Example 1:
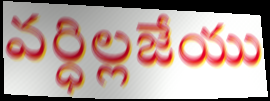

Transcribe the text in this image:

వర్ధిల్లజేయు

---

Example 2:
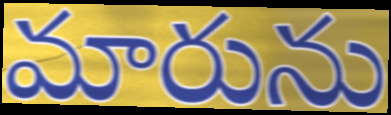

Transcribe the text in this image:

మారును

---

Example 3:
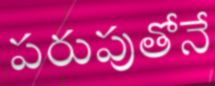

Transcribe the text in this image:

పరుపుతోనే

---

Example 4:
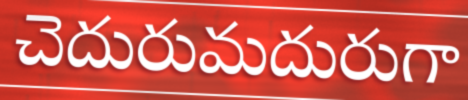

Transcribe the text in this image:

చెదురుమదురుగా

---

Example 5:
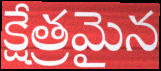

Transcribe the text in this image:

క్షేత్రమైన